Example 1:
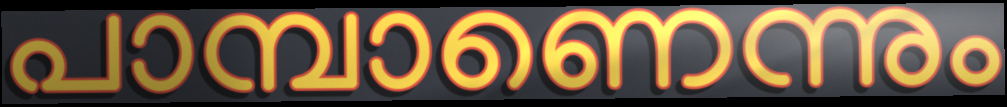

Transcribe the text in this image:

പാമ്പാണെന്നും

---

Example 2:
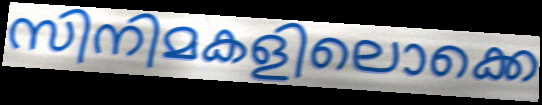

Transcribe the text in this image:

സിനിമകളിലൊക്കെ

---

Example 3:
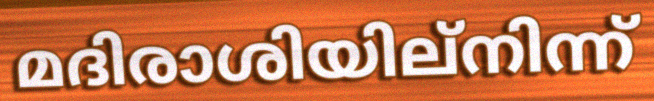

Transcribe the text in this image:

മദിരാശിയില്നിന്ന്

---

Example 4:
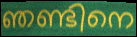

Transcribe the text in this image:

ഞണ്ടിനെ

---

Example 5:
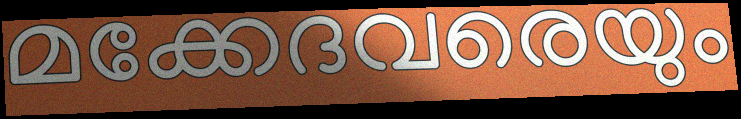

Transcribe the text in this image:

മക്കേദവരെയും